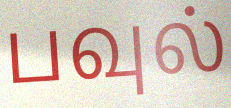
பவுல்